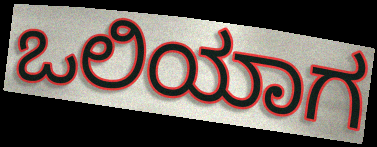
ಒಲಿಯಾಗ